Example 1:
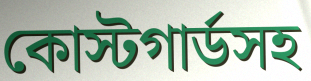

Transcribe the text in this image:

কোস্টগার্ডসহ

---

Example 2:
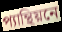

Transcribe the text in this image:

প্যান্থিয়নে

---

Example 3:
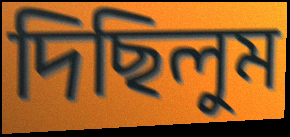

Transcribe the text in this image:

দিছিলুম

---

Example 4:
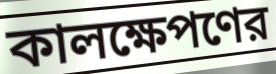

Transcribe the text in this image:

কালক্ষেপণের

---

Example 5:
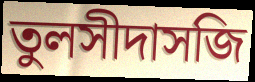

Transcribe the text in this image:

তুলসীদাসজি